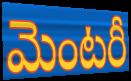
మెంటరీ